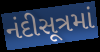
નંદીસૂત્રમાં